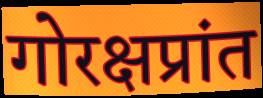
गोरक्षप्रांत